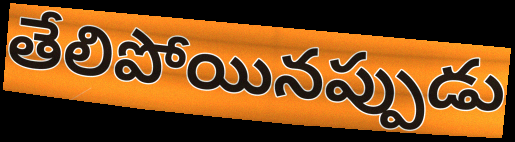
తేలిపోయినప్పుడు